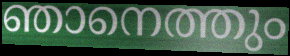
ഞാനെത്തും